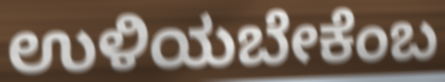
ಉಳಿಯಬೇಕೆಂಬ